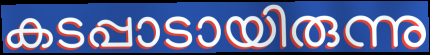
കടപ്പാടായിരുന്നു